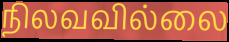
நிலவவில்லை